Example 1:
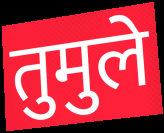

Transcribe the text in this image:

तुमुले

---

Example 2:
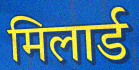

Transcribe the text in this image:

मिलार्ड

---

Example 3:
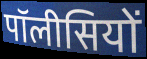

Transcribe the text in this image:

पॉलीसियों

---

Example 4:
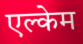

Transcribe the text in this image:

एल्केम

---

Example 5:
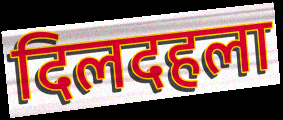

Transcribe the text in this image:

दिलदहला